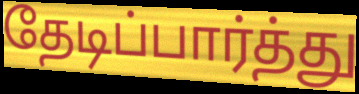
தேடிப்பார்த்து